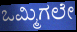
ಒಮ್ಮಿಗಲೇ